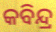
କବିନ୍ଦ୍ର